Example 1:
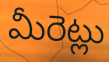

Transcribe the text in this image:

మీరెట్లు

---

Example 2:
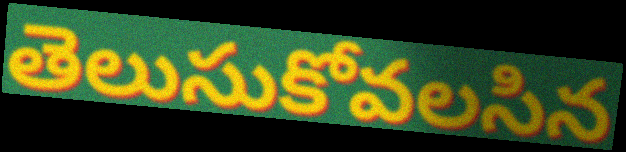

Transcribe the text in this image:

తెలుసుకోవలసిన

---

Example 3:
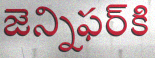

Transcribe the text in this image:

జెన్నిఫర్‌కి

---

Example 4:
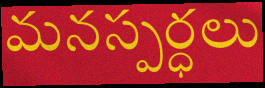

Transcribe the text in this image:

మనస్పర్ధలు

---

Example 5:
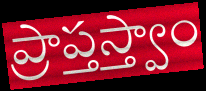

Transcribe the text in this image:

ప్రాప్తస్త్వాం